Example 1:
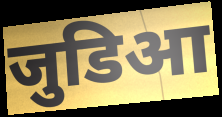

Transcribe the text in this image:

जुडिआ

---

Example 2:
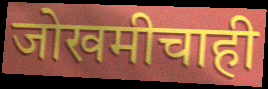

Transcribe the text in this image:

जोखमीचाही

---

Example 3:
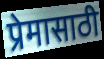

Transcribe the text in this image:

प्रेमासाठी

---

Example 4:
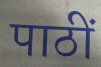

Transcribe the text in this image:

पाठीं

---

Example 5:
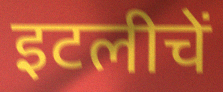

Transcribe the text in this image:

इटलीचें